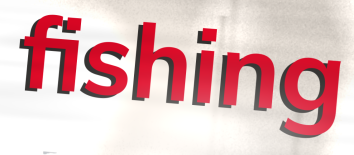
fishing